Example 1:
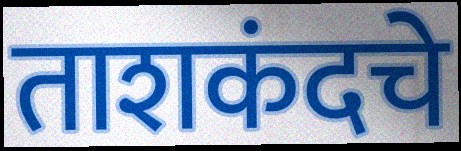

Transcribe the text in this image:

ताशकंदचे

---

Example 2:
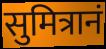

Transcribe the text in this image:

सुमित्रानं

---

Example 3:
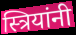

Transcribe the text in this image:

स्त्रियांनी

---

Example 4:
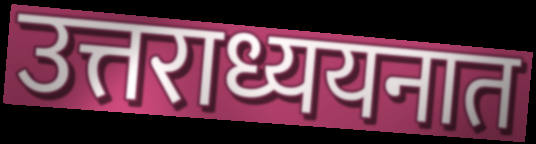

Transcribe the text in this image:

उत्तराध्ययनात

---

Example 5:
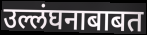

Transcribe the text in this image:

उल्लंघनाबाबत